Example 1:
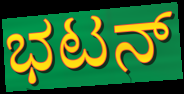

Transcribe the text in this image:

ಭಟನ್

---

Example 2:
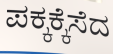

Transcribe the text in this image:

ಪಕ್ಕಕ್ಕೆಸೆದ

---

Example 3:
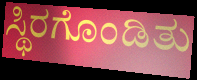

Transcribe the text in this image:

ಸ್ಥಿರಗೊಂಡಿತು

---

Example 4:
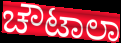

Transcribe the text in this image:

ಚೌಟಾಲಾ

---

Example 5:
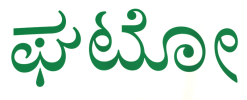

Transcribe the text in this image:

ಘಟೋ